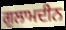
ਗੁਲਾਮਦੀਨ